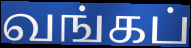
வங்கப்